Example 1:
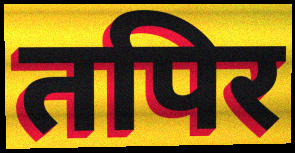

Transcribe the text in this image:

तपिर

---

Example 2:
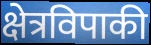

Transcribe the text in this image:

क्षेत्रविपाकी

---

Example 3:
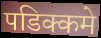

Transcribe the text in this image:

पडिक्कमे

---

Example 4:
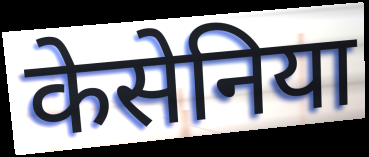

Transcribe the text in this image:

केसेनिया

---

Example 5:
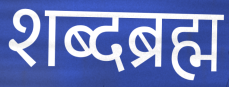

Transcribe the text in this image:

शब्दब्रह्म